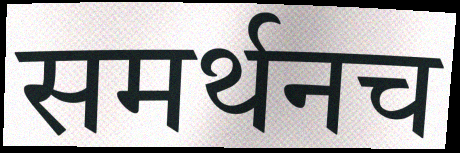
समर्थनच